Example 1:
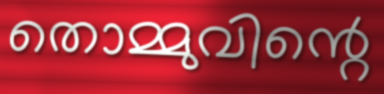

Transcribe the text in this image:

തൊമ്മുവിന്റെ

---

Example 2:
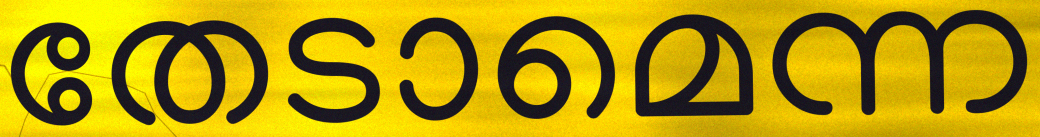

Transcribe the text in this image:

തേടാമെന്ന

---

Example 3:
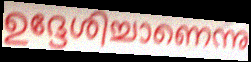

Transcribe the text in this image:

ഉദ്ദേശിച്ചാണെന്നു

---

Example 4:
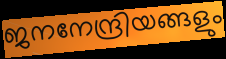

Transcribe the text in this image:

ജനനേന്ദ്രിയങ്ങളും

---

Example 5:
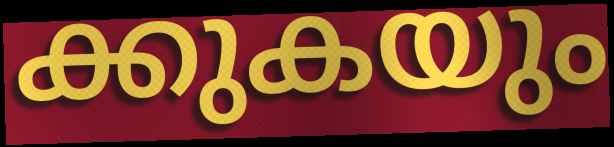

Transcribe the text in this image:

ക്കുകയും